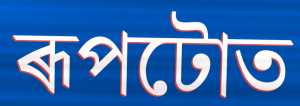
ৰূপটোত